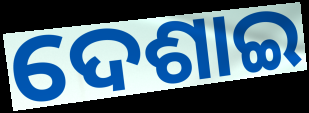
ଦେଶାଇ